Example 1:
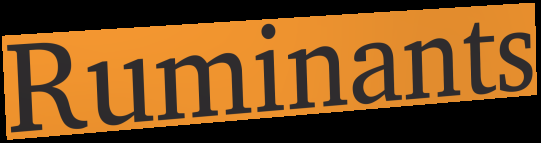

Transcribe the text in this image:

Ruminants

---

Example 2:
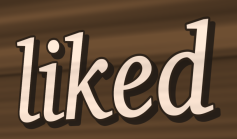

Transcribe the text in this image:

liked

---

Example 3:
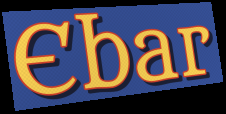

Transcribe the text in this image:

Ebar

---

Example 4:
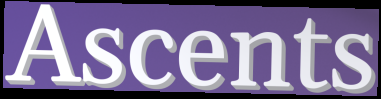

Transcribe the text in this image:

Ascents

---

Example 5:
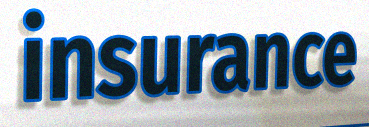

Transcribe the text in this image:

insurance